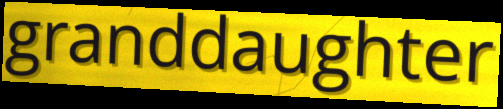
granddaughter